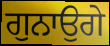
ਗੁਨਾਉਗੇ